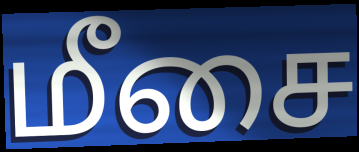
மீசை